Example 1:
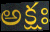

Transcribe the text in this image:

అక్షః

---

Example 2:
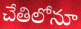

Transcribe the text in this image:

చేతిలోనూ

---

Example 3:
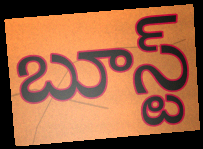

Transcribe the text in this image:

బూస్ట్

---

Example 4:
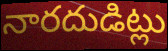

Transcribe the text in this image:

నారదుడిట్లు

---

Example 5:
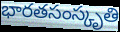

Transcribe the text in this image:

భారతసంస్కృతి